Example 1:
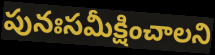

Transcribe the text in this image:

పునఃసమీక్షించాలని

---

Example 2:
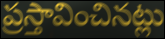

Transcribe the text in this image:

ప్రస్తావించినట్లు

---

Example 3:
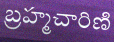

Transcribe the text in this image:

బ్రహ్మచారిణి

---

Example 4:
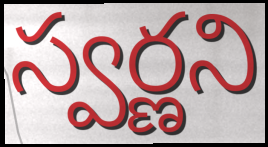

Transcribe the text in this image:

స్వర్ణని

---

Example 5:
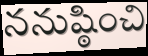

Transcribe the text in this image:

ననుష్ఠించి